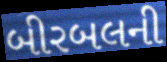
બીરબલની